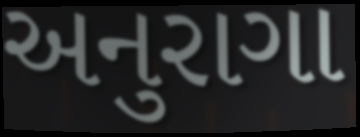
અનુરાગા